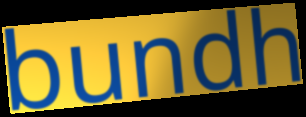
bundh